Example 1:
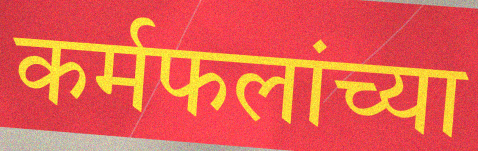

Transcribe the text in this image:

कर्मफलांच्या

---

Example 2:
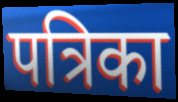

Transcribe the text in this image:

पत्रिका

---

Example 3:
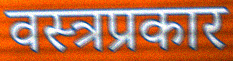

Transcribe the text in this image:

वस्त्रप्रकार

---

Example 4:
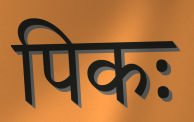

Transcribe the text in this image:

पिकः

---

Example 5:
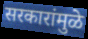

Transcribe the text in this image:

सरकारांमुळे